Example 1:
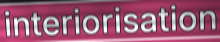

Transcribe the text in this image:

interiorisation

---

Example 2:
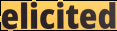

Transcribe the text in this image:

elicited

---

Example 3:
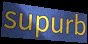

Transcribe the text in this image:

supurb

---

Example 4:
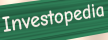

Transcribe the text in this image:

Investopedia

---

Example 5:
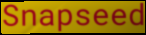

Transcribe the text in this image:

Snapseed